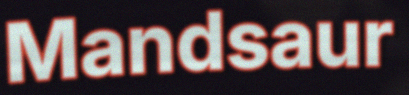
Mandsaur